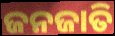
ଜନଜାତି